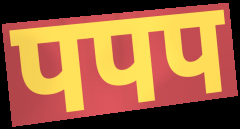
पपप